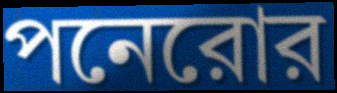
পনেরোর